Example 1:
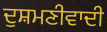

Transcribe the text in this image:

ਦੁਸ਼ਮਣੀਵਾਦੀ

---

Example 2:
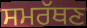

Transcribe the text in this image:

ਸਮਰੱਥਣ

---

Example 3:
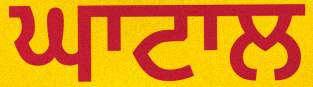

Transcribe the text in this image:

ਘਾਟਾਲ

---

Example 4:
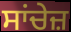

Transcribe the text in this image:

ਸਾਂਚੇਜ਼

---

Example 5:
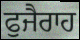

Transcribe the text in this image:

ਫੁਜੈਰਾਹ